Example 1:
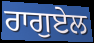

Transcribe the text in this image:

ਰਾਗੁਏਲ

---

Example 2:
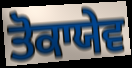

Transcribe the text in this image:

ਤੋਕਾਯੇਵ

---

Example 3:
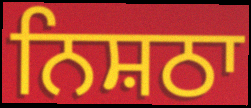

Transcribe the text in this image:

ਨਿਸ਼ਠਾ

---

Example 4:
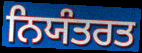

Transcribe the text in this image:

ਨਿਯੰਤਰਤ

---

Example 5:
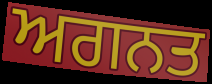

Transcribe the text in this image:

ਅਗਨਤ